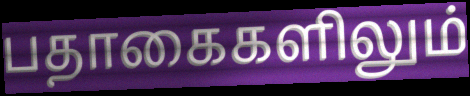
பதாகைகளிலும்